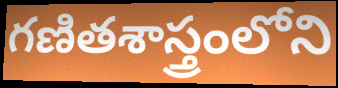
గణితశాస్త్రంలోని